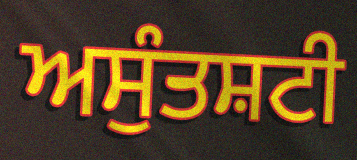
ਅਸੁੰਤਸ਼ਟੀ